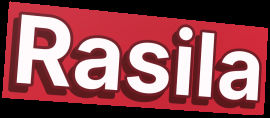
Rasila